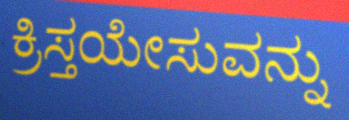
ಕ್ರಿಸ್ತಯೇಸುವನ್ನು